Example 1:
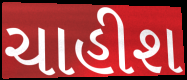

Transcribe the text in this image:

ચાહીશ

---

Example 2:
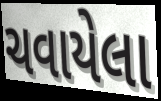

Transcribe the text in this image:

ચવાયેલા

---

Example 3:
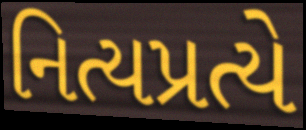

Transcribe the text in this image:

નિત્યપ્રત્યે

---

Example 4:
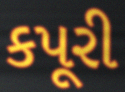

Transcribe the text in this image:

કપૂરી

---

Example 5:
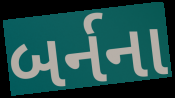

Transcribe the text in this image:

બર્નના